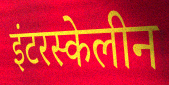
इंटरस्केलीन